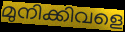
മുനിക്കിവളെ